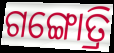
ଗଙ୍ଗୋତ୍ରି